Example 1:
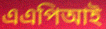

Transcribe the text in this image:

এএপিআই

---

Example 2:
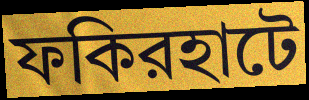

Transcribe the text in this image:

ফকিরহাটে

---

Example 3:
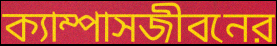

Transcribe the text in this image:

ক্যাম্পাসজীবনের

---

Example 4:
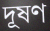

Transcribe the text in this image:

দূষণ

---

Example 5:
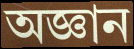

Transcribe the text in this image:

অজ্ঞান